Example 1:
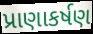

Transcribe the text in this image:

પ્રાણાકર્ષણ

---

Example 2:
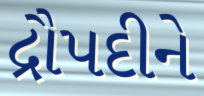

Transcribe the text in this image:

દ્રૌપદીને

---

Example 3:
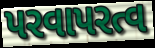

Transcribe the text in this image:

પરવાપરત્વ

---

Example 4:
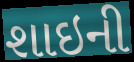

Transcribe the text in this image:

શાઇની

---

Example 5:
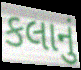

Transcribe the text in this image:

કલાનું